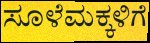
ಸೂಳೆಮಕ್ಕಳಿಗೆ